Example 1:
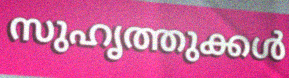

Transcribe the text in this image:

സുഹൃത്തുക്കൾ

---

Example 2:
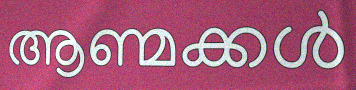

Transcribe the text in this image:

ആണ്മക്കൾ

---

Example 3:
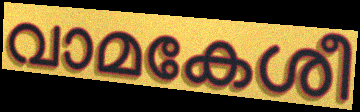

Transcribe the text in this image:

വാമകേശീ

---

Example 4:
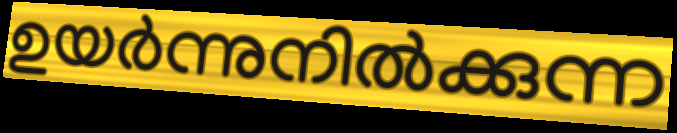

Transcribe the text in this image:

ഉയർന്നുനിൽക്കുന്ന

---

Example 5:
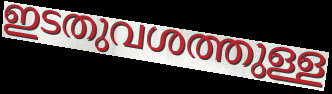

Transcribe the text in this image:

ഇടതുവശത്തുള്ള